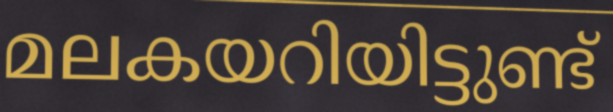
മലകയറിയിട്ടുണ്ട്